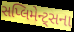
સપ્લિમેન્ટ્સના